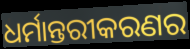
ଧର୍ମାନ୍ତରୀକରଣର